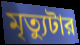
মৃত্যুটার